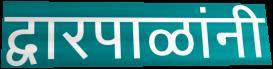
द्वारपाळांनी